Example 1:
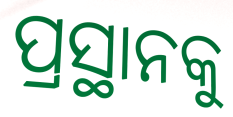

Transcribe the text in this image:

ପ୍ରସ୍ଥାନକୁ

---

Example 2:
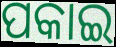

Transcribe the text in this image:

ପକାଇ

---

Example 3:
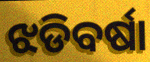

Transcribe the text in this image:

ଝଡିବର୍ଷା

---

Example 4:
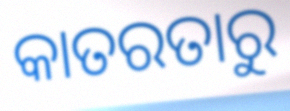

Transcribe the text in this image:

କାତରତାରୁ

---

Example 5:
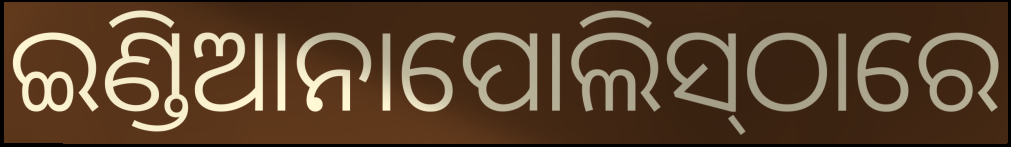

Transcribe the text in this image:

ଇଣ୍ଡିଆନାପୋଲିସ୍‍ଠାରେ